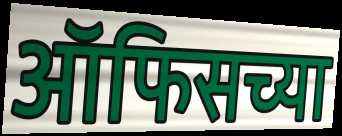
ऑफिसच्या